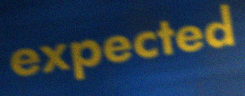
expected